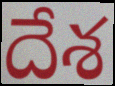
దేశ